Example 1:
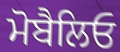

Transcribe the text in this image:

ਮੋਬੈਲਿਓ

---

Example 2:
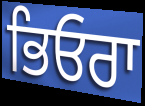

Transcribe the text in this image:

ਭਿਓਰਾ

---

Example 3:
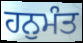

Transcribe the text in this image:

ਹਨੁਮੰਤ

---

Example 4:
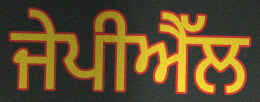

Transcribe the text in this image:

ਜੇਪੀਐੱਲ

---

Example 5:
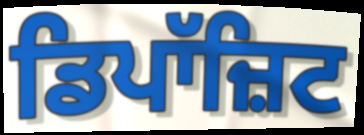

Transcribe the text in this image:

ਡਿਪਾੱਜ਼ਿਟ